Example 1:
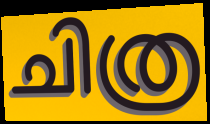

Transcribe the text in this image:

ചിത്ര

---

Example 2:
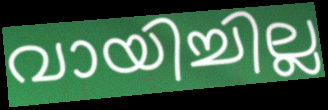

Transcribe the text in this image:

വായിച്ചില്ല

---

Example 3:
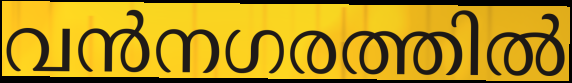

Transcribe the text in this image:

വൻനഗരത്തിൽ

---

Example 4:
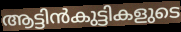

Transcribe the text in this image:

ആട്ടിൻകുട്ടികളുടെ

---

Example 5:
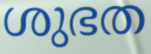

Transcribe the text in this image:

ശുഭത